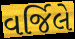
વર્જિલે